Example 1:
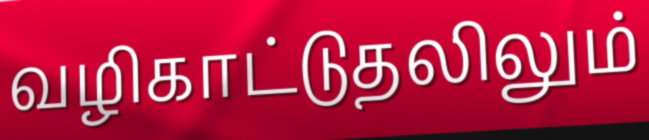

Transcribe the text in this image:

வழிகாட்டுதலிலும்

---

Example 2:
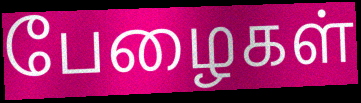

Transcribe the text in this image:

பேழைகள்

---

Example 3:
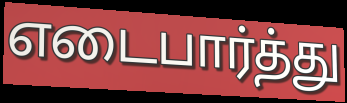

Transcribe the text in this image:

எடைபார்த்து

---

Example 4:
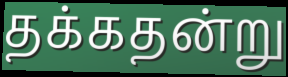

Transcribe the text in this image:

தக்கதன்று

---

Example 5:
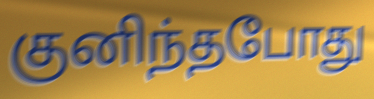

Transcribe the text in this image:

குனிந்தபோது